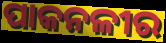
ପାକନଳୀର